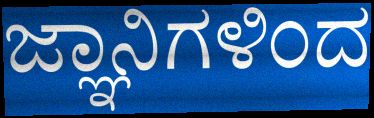
ಜ್ಞಾನಿಗಳಿಂದ